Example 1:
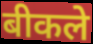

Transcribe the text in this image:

बीकले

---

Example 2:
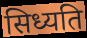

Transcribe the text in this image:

सिध्यति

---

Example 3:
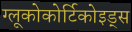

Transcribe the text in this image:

ग्लूकोकोर्टिकोइड्स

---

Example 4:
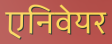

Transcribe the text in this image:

एनिवेयर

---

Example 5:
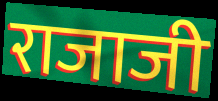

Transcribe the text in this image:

राजाजी